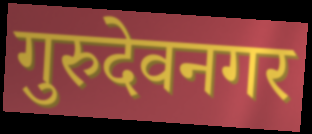
गुरुदेवनगर